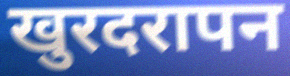
खुरदरापन